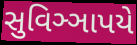
સુવિઞ્ઞાપયે